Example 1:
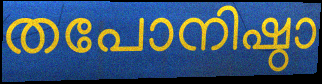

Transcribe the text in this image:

തപോനിഷ്ഠാ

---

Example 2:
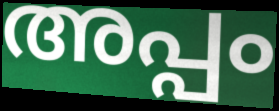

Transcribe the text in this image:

അപ്പം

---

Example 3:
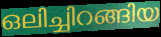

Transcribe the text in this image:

ഒലിച്ചിറങ്ങിയ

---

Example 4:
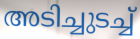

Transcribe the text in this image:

അടിച്ചുടച്ച്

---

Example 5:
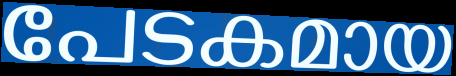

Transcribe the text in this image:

പേടകമായ